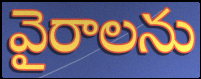
వైరాలను